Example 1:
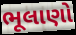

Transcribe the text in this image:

ભૂલાણો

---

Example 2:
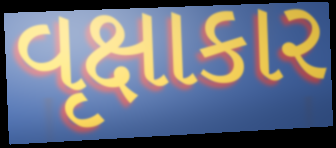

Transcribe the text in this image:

વૃક્ષાકાર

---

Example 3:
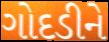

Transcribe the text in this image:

ગોદડીને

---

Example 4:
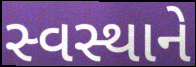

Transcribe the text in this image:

સ્વસ્થાને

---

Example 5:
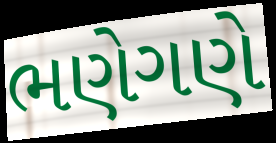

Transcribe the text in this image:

ભણેગણે